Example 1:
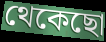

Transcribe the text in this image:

থেকেছো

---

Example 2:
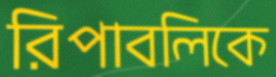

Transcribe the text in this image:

রিপাবলিকে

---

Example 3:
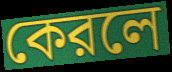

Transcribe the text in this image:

কেরলে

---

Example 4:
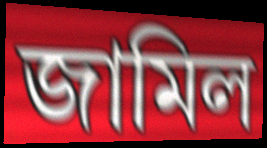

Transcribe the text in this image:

জামিল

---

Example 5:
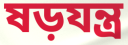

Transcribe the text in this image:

ষড়যন্ত্র